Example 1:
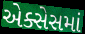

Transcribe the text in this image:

એક્સેસમાં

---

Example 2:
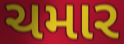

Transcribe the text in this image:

ચમાર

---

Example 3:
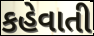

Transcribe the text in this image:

કહેવાતી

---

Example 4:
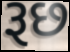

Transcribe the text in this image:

રૂછ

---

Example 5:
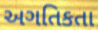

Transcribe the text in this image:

અગતિકતા